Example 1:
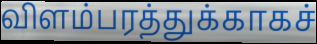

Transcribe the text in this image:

விளம்பரத்துக்காகச்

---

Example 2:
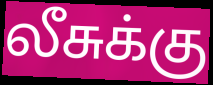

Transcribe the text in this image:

லீசுக்கு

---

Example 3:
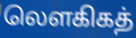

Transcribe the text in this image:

லௌகிகத்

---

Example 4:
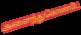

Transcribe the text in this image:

அளைந்துகொண்டே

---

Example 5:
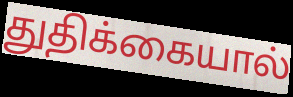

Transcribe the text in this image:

துதிக்கையால்